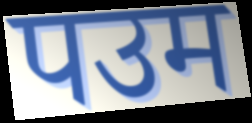
पउम